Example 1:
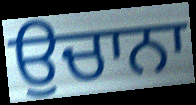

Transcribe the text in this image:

ਉਚਾਨਾ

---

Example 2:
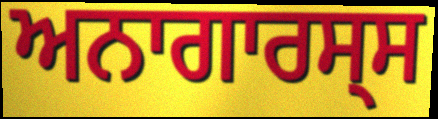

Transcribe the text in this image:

ਅਨਾਗਾਰਸ੍ਸ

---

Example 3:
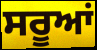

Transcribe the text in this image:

ਸਰੂਆਂ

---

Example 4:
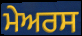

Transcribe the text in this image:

ਮੇਅਰਸ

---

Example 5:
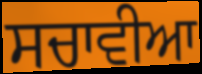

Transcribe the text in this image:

ਸਚਾਵੀਆ